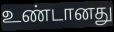
உண்டானது